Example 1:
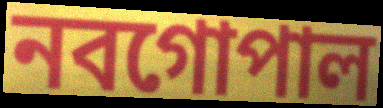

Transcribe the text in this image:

নবগোপাল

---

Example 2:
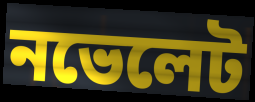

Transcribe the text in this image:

নভেলেট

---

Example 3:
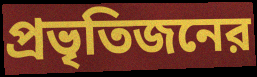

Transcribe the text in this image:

প্রভৃতিজনের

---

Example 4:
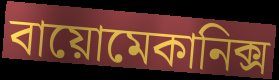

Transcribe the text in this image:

বায়োমেকানিক্স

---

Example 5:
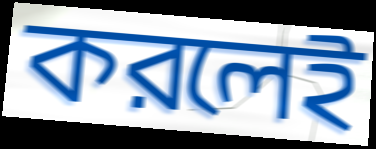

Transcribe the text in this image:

করলেই